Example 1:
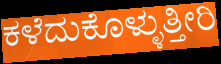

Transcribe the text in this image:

ಕಳೆದುಕೊಳ್ಳುತ್ತೀರಿ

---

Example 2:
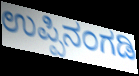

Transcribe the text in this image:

ಉಪ್ಪಿನಂಗಡಿ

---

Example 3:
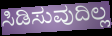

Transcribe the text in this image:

ಸಿಡಿಸುವುದಿಲ್ಲ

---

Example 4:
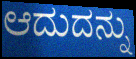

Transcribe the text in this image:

ಆದುದನ್ನು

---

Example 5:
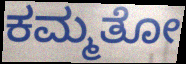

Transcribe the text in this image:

ಕಮ್ಮತೋ